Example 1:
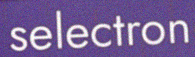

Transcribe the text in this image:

selectron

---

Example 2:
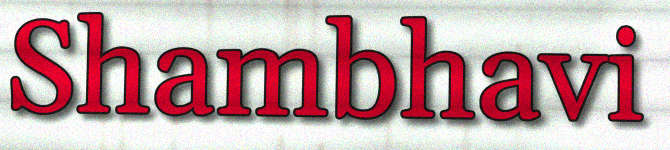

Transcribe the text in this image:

Shambhavi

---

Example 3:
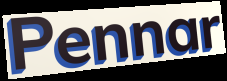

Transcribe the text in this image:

Pennar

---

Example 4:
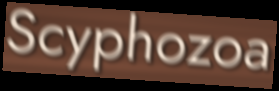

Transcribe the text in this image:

Scyphozoa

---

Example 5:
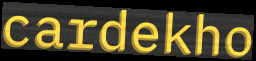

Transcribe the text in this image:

cardekho